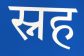
स्नह